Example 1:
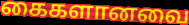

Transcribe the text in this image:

கைகளானவை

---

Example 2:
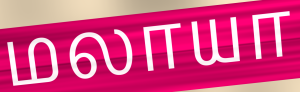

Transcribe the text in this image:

மலாயா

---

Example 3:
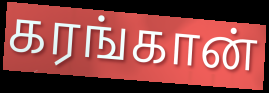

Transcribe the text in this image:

கரங்கான்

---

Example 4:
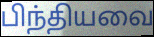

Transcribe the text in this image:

பிந்தியவை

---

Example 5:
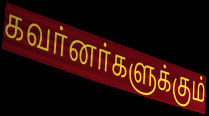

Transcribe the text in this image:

கவர்னர்களுக்கும்